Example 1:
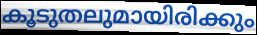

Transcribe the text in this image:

കൂടുതലുമായിരിക്കും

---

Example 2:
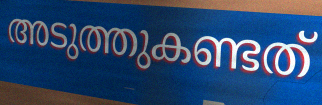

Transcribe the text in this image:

അടുത്തുകണ്ടത്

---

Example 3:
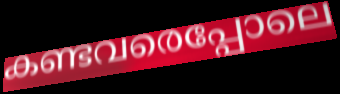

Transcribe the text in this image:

കണ്ടവരെപ്പോലെ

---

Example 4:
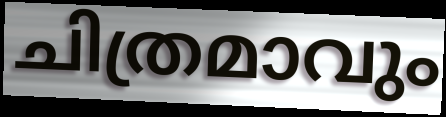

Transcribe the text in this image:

ചിത്രമാവും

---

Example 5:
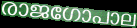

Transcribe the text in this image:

രാജഗോപാല